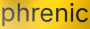
phrenic